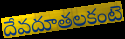
దేవదూతలకంటె